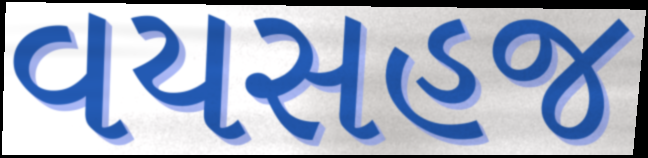
વયસહજ